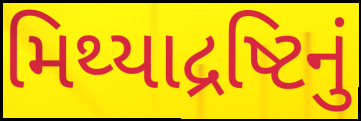
મિથ્યાદ્રષ્ટિનું